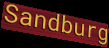
Sandburg